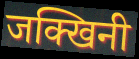
जक्खिनी